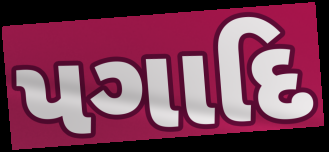
પગાદિ